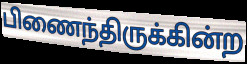
பிணைந்திருக்கின்ற